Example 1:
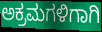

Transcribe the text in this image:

ಅಕ್ರಮಗಳಿಗಾಗಿ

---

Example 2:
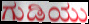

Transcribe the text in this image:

ಗುಡಿಯು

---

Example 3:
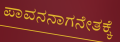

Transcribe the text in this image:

ಪಾವನನಾಗನೇತಕ್ಕೆ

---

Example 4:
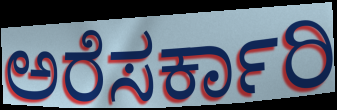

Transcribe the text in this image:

ಅರೆಸರ್ಕಾರಿ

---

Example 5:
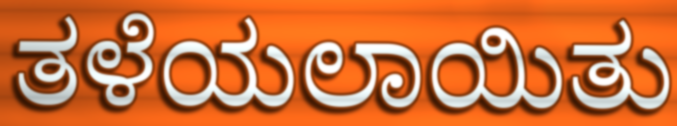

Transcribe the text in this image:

ತಳೆಯಲಾಯಿತು